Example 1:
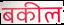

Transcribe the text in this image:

बकील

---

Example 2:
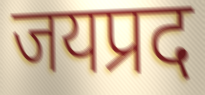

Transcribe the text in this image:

जयप्रद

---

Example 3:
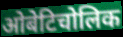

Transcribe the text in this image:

ओबेटिचोलिक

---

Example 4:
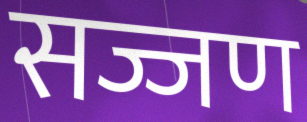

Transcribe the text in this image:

सज्जण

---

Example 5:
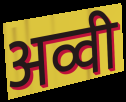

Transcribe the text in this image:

अव्वी